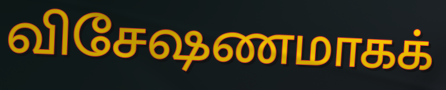
விசேஷணமாகக்